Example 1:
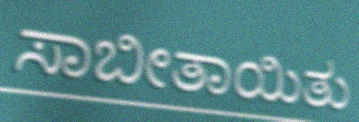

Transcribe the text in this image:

ಸಾಬೀತಾಯಿತು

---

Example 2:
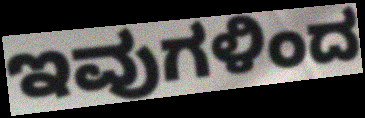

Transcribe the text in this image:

ಇವುಗಳಿಂದ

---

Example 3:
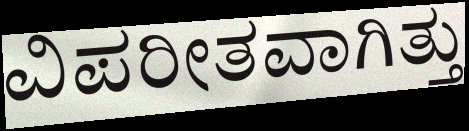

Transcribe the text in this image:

ವಿಪರೀತವಾಗಿತ್ತು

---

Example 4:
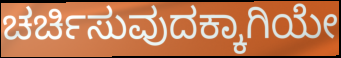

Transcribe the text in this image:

ಚರ್ಚಿಸುವುದಕ್ಕಾಗಿಯೇ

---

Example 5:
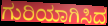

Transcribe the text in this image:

ಗುರಿಯಾಗಿಸಿದ